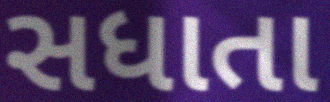
સધાતા